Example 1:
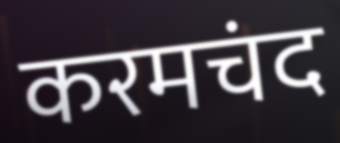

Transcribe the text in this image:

करमचंद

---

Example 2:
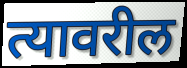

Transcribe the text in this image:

त्यावरील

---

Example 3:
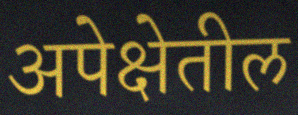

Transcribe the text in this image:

अपेक्षेतील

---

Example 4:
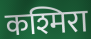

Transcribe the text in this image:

कश्मिरा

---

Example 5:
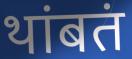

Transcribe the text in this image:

थांबतं